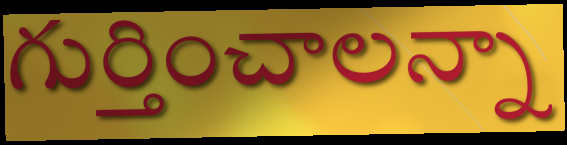
గుర్తించాలన్నా